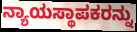
ನ್ಯಾಯಸ್ಥಾಪಕರನ್ನು